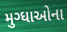
મુગ્ધાઓના